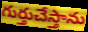
గుర్తుచేస్తాను